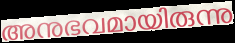
അനുഭവമായിരുന്നു